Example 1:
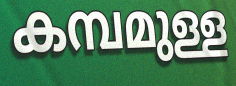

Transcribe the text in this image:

കമ്പമുള്ള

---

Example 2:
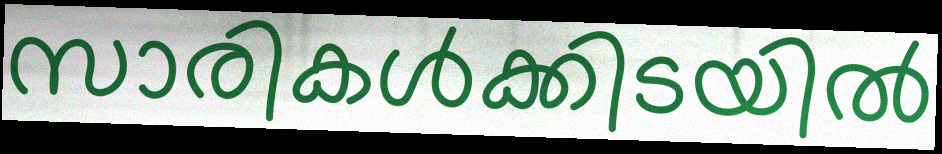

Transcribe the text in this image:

സാരികൾക്കിടയിൽ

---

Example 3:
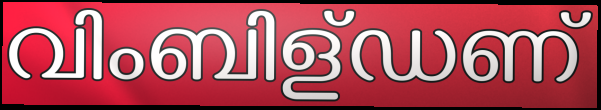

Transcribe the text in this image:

വിംബിള്ഡണ്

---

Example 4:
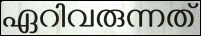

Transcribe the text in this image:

ഏറിവരുന്നത്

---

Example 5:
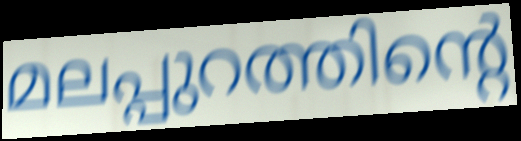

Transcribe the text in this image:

മലപ്പുറത്തിന്റെ